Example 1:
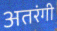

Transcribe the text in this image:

अतरंगी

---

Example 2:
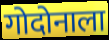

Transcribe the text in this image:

गोदोनाला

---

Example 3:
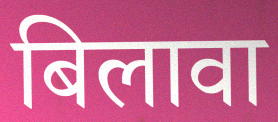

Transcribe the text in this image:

बिलावा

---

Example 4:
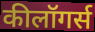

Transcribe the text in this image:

कीलॉगर्स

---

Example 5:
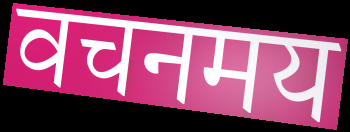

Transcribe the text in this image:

वचनमय